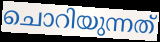
ചൊറിയുന്നത്